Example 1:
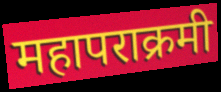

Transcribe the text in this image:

महापराक्रमी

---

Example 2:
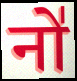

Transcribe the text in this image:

नो॑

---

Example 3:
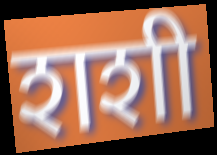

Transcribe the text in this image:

शशी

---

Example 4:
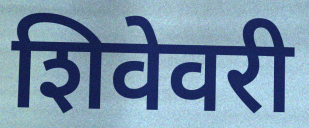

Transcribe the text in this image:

शिवेवरी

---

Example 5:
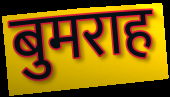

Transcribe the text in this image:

बुमराह